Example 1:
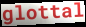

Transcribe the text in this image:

glottal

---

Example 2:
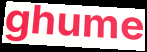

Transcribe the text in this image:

ghume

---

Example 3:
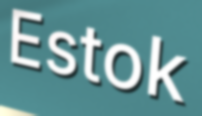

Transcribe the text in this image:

Estok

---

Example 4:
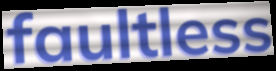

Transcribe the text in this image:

faultless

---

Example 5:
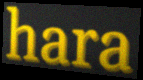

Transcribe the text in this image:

hara